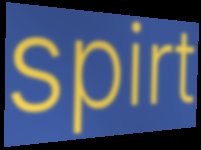
spirt